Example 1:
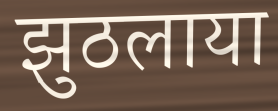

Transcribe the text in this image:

झुठलाया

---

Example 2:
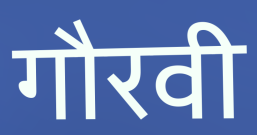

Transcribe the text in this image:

गौरवी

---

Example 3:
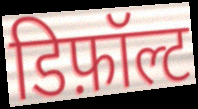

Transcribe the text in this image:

डिफ़ॉल्ट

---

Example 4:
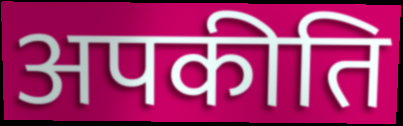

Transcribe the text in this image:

अपकीति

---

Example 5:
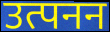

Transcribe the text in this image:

उत्पनन